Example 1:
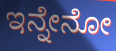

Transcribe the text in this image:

ಇನ್ನೇನೋ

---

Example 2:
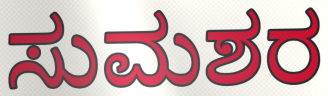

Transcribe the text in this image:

ಸುಮಶರ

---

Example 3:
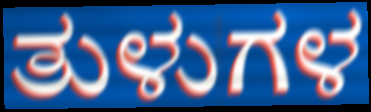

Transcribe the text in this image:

ತುಳುಗಳ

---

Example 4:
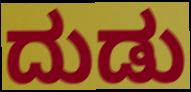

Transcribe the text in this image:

ದುಡು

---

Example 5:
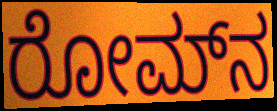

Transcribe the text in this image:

ರೋಮ್‍ನ